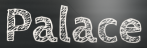
Palace